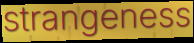
strangeness